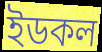
ইডকল